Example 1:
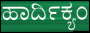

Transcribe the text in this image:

ಹಾರ್ದಿಕ್ಯಂ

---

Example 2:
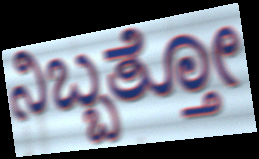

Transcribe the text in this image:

ನಿಬ್ಬತ್ತೋ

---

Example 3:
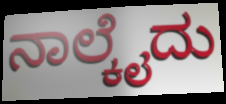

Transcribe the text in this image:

ನಾಲ್ಕೈದು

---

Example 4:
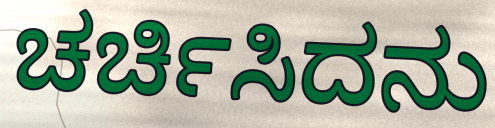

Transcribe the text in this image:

ಚರ್ಚಿಸಿದನು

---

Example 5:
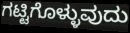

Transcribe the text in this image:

ಗಟ್ಟಿಗೊಳ್ಳುವುದು